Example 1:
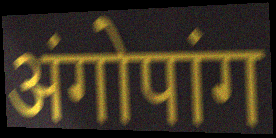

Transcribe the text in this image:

अंगोपांग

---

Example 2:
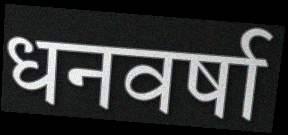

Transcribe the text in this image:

धनवर्षा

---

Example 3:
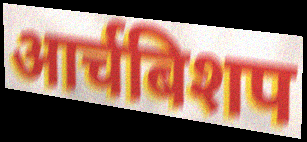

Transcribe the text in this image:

आर्चबिशप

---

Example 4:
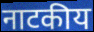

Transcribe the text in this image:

नाटकीय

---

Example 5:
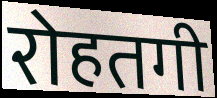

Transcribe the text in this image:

रोहतगी